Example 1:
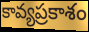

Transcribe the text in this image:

కావ్యప్రకాశం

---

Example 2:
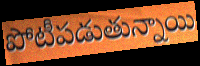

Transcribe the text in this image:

పోటీపడుతున్నాయి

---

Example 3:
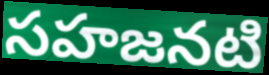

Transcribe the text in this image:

సహజనటి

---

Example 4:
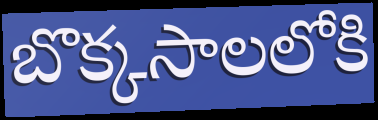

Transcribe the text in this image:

బొక్కసాలలోకి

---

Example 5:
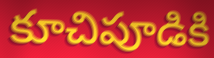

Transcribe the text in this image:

కూచిపూడికి